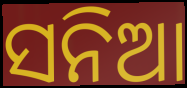
ସନିଆ